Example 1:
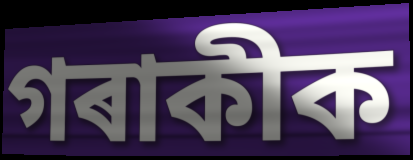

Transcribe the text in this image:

গৰাকীক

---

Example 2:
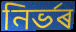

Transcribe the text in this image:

নিৰ্ভৰ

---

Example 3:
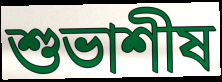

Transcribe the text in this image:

শুভাশীষ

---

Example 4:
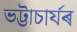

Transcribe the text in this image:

ভট্টাচাৰ্যৰ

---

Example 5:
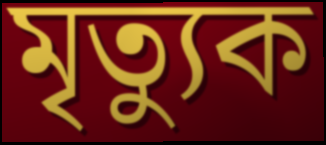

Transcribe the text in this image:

মৃত্যুক